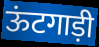
ऊंटगाड़ी